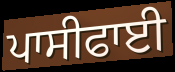
ਪਾਸੀਫਾਈ